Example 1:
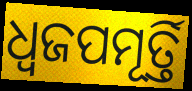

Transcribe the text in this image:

ଧ୍ୱଜପମୂର୍ତ୍ତି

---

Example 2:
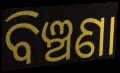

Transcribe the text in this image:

ବିଞ୍ଚଣା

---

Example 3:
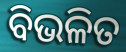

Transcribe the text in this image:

ବିଭଳିତ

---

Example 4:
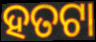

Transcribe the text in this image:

ହତଟା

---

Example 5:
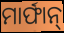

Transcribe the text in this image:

ମାର୍ଫାନ୍